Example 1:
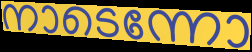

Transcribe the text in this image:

നാടെന്നോ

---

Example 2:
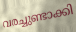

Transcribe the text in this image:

വരച്ചുണ്ടാക്കി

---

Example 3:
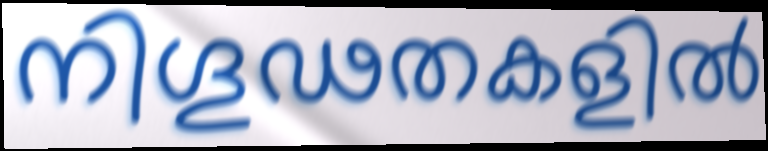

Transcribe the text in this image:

നിഗൂഢതകളിൽ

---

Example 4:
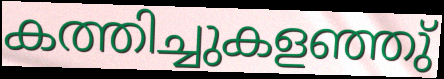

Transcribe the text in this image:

കത്തിച്ചുകളഞ്ഞു്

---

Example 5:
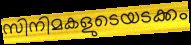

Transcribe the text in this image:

സിനിമകളുടെയടക്കം